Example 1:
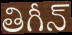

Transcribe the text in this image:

తిగీన్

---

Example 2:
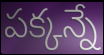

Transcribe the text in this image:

పక్కన్నే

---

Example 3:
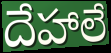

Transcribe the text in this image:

దేహాలే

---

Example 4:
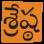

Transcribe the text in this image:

శ్రేష్ఠ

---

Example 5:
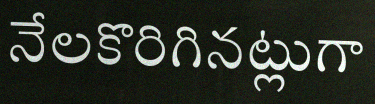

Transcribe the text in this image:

నేలకొరిగినట్లుగా